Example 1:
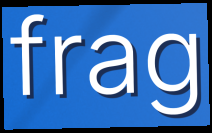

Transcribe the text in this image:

frag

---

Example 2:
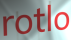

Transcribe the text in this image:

rotlo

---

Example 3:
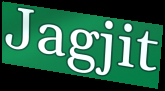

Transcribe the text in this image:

Jagjit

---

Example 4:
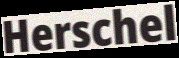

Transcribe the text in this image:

Herschel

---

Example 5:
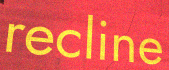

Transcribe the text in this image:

recline